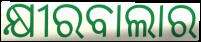
କ୍ଷୀରବାଲାର